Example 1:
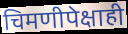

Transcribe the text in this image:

चिमणीपेक्षाही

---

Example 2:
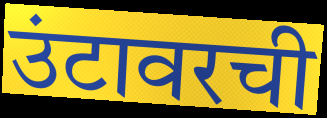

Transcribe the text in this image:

उंटावरची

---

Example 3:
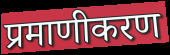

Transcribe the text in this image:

प्रमाणीकरण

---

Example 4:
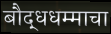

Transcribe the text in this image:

बौद्धधम्माचा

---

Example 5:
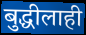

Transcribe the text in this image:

बुद्धीलाही